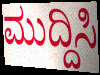
ಮುದ್ದಿಸಿ